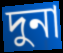
দুনা